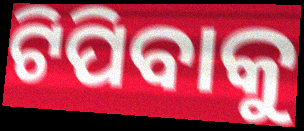
ଟିପିବାକୁ